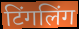
टिंगलिंग